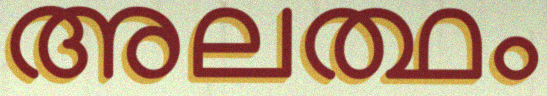
അലത്ഥം